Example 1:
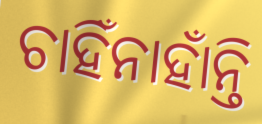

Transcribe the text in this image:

ଚାହିଁନାହାଁନ୍ତି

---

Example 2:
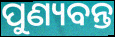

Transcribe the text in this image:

ପୁଣ୍ୟବନ୍ତ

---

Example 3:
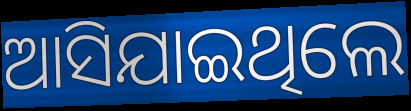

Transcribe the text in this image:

ଆସିଯାଇଥିଲେ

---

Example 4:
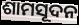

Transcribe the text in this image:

ଶାମସୂଦନ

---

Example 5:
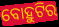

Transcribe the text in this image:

ବୋହୁଟିର